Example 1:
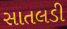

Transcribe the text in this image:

સાતલડી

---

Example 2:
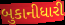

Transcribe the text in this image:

બુકાનીધારી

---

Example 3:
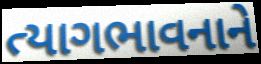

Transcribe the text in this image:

ત્યાગભાવનાને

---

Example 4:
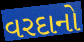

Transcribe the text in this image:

વરદાનો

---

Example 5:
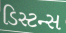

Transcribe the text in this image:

ડિસ્ટન્સ